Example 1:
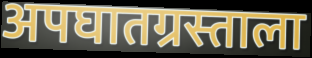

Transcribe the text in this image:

अपघातग्रस्ताला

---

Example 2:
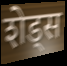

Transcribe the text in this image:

शेड्स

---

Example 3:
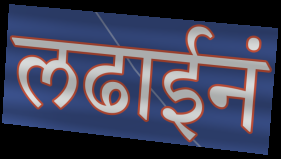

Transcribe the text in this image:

लढाईनं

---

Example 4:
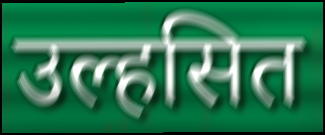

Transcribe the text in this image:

उल्हसित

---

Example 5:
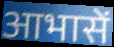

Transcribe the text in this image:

आभासें